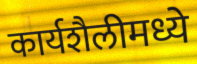
कार्यशैलीमध्ये